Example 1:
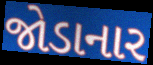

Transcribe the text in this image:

જોડાનાર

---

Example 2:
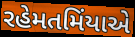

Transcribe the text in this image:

રહેમતમિંયાએ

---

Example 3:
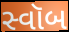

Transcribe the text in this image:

સ્વૉબ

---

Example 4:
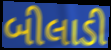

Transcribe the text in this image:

બીલાડી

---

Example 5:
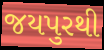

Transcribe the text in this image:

જયપુરથી